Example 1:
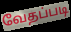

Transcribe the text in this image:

வேதப்படி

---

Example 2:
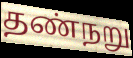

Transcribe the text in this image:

தண்நறு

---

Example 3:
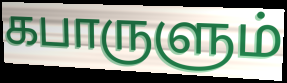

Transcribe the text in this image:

கபாருளும்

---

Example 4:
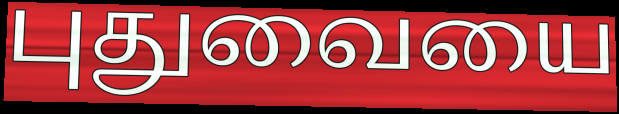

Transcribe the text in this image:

புதுவையை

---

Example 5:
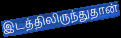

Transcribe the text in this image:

இடத்திலிருந்துதான்